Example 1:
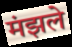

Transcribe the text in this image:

मंझले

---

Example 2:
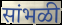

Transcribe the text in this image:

सांभळी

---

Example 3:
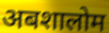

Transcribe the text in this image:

अबशालोम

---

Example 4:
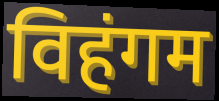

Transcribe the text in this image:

विहंगम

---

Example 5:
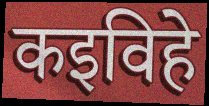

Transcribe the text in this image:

कइविहे